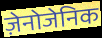
ज़ेनोजेनिक